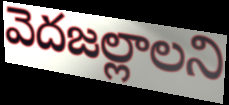
వెదజల్లాలని